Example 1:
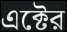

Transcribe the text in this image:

এক্টের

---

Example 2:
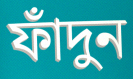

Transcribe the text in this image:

ফাঁদুন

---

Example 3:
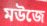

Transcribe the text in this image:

মউজে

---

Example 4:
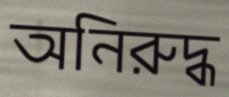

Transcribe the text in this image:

অনিরুদ্ধ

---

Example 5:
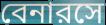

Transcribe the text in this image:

বেনারসে